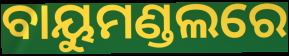
ବାୟୁମଣ୍ଡଲରେ